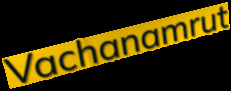
Vachanamrut